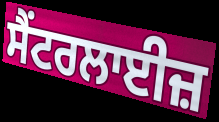
ਸੈਂਟਰਲਾਈਜ਼